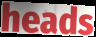
heads